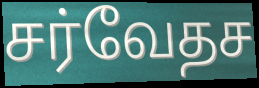
சர்வேதச